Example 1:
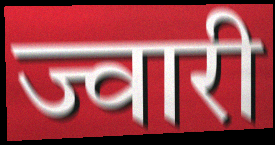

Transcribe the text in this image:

ज्वारी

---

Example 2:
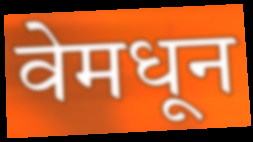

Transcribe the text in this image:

वेमधून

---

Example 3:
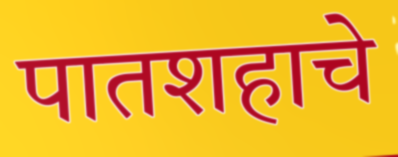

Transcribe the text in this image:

पातशहाचे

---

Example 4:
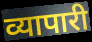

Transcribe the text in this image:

व्यापारी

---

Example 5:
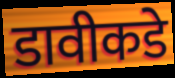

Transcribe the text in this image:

डावीकडे